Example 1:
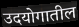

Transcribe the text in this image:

उदयोगातील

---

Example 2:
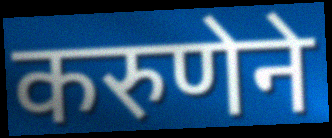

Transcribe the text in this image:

करुणेने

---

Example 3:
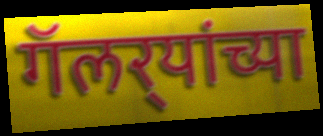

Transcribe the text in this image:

गॅलर्‍यांच्या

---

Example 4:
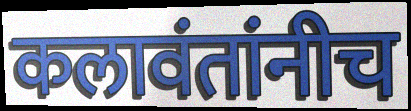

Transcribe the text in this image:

कलावंतांनीच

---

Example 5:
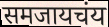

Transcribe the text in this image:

समजायचंय